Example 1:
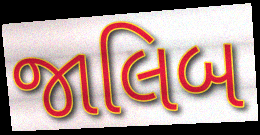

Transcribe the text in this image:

જાલિબ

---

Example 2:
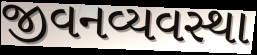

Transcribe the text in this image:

જીવનવ્યવસ્થા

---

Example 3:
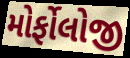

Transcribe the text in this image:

મોર્ફોલોજી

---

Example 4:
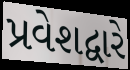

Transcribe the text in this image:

પ્રવેશદ્વારે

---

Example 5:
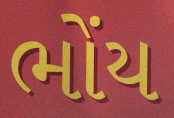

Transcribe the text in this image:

ભોંય